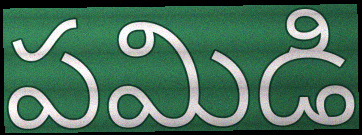
పమిడి